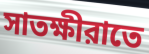
সাতক্ষীরাতে